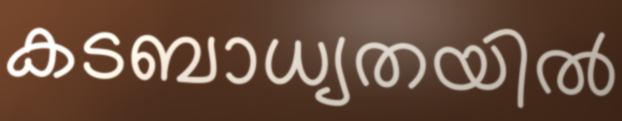
കടബാധ്യതയിൽ